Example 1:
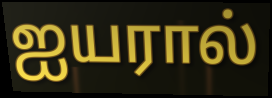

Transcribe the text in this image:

ஐயரால்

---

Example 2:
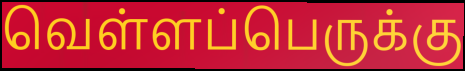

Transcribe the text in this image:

வெள்ளப்பெருக்கு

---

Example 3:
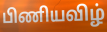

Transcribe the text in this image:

பிணியவிழ்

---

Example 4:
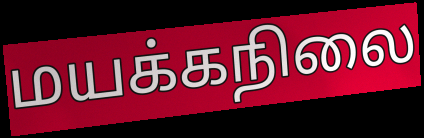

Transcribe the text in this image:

மயக்கநிலை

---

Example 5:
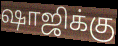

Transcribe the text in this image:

ஷாஜிக்கு